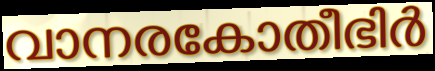
വാനരകോതീഭിർ